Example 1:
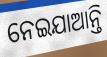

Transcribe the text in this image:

ନେଇଯାଆନ୍ତି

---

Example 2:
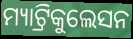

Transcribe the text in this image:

ମ୍ୟାଟ୍ରିକୁଲେସନ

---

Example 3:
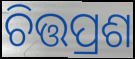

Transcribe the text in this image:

ଚିତ୍ତପ୍ରଶ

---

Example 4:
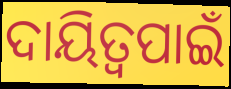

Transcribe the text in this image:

ଦାୟିତ୍ୱପାଇଁ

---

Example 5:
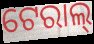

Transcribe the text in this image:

ଟେରାଲ୍